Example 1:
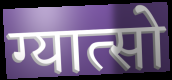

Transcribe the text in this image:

ग्यात्सो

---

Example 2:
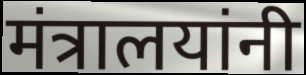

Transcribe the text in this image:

मंत्रालयांनी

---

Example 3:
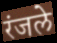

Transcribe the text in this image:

रंजले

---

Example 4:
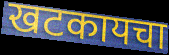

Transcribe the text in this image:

खटकायचा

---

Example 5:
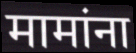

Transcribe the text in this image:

मामांना